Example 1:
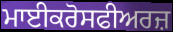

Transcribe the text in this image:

ਮਾਈਕਰੋਸਫੀਅਰਜ਼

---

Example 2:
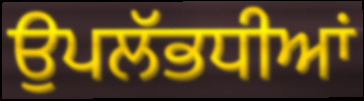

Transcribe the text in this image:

ਉਪਲੱਭਧੀਆਂ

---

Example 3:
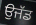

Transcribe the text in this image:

ਉਜੱਡ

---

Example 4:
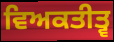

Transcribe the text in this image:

ਵਿਅਕਤੀਤ੍ਵ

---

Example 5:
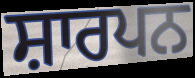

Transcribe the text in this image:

ਸ਼ਾਰਪਨ